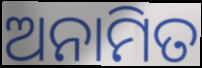
ଅନାମିତ